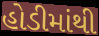
હોડીમાંથી